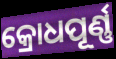
କ୍ରୋଧପୂର୍ଣ୍ଣ